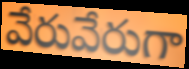
వేరువేరుగా